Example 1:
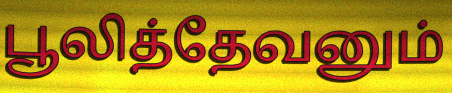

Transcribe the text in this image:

பூலித்தேவனும்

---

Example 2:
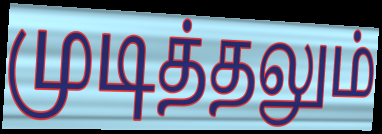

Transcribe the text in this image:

முடித்தலும்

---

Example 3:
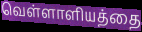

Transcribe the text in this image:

வெள்ளாளியத்தை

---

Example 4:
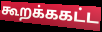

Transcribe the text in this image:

கூறக்ககட்ட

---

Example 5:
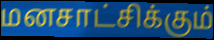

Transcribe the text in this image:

மனசாட்சிக்கும்